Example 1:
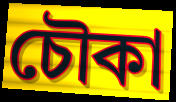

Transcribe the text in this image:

চৌকা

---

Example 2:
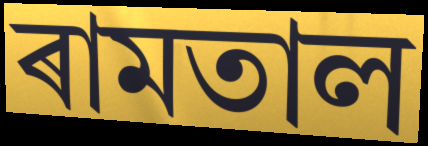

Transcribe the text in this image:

ৰামতাল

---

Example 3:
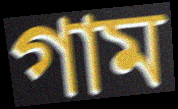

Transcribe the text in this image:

গাম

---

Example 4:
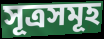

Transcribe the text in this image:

সূত্ৰসমূহ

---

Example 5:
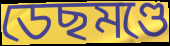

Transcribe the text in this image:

ডেছমণ্ডে